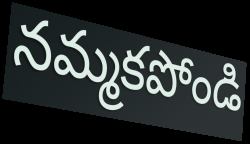
నమ్మకపోండి